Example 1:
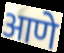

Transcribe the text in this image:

आणे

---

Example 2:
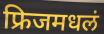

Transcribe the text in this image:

फ्रिजमधलं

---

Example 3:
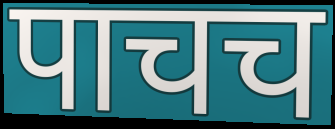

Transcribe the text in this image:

पाचच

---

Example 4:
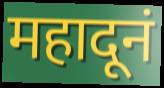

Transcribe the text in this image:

महादूनं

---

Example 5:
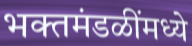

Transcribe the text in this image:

भक्तमंडळींमध्ये